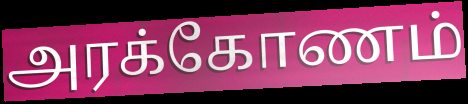
அரக்கோணம்